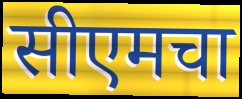
सीएमचा